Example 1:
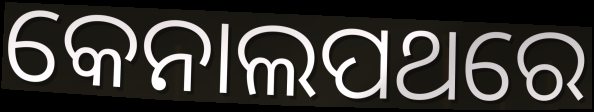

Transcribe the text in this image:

କେନାଲପଥରେ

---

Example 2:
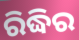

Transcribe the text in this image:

ରିଦ୍ଧିର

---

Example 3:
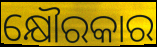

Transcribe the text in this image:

କ୍ଷୌରକାର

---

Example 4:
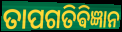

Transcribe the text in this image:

ତାପଗତିଵିଜ୍ଞାନ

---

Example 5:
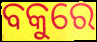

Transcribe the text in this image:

ବକୁରେ